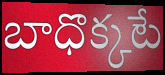
బాధొక్కటే